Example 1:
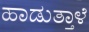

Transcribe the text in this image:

ಹಾಡುತ್ತಾಳೆ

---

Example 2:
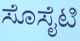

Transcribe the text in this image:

ಸೊಸೈಟಿ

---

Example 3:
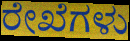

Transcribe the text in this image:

ರೇಖೆಗಳು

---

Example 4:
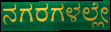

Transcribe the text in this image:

ನಗರಗಳಲ್ಲೇ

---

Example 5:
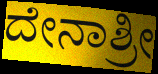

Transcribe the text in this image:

ದೇನಾಶ್ರೀ